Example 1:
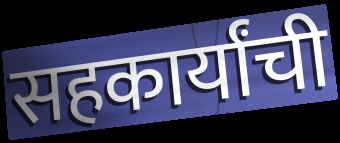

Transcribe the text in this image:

सहकार्यांची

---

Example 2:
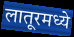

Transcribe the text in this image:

लातूरमध्ये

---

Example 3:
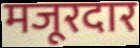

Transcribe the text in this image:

मजूरदार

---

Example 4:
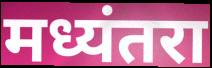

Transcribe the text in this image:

मध्यंतरा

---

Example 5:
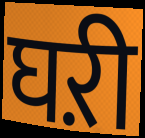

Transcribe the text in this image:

घऱी